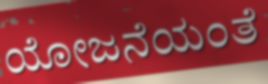
ಯೋಜನೆಯಂತೆ